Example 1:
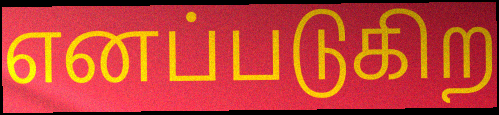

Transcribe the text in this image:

எனப்படுகிற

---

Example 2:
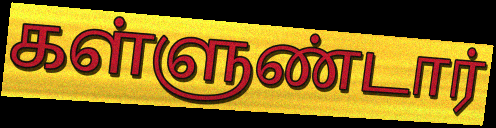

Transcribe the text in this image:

கள்ளுண்டார்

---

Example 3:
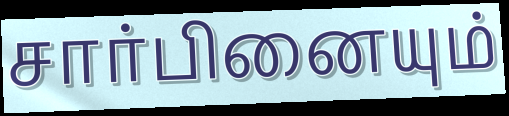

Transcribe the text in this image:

சார்பினையும்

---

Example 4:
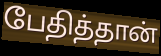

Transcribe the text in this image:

பேதித்தான்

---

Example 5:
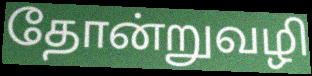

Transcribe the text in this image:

தோன்றுவழி